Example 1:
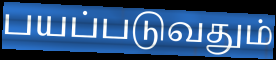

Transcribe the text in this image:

பயப்படுவதும்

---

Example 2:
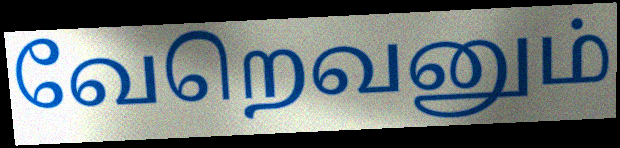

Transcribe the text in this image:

வேறெவனும்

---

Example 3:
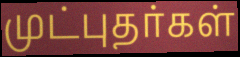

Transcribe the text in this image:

முட்புதர்கள்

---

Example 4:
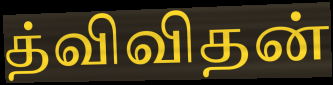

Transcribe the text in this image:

த்விவிதன்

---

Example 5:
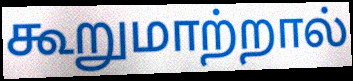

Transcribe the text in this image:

கூறுமாற்றால்